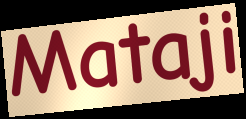
Mataji